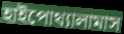
হাইপোথ্যালামাস